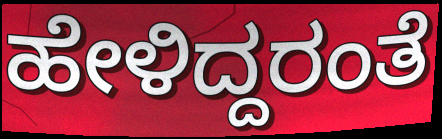
ಹೇಳಿದ್ದರಂತೆ